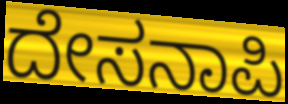
ದೇಸನಾಪಿ